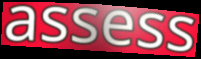
assess